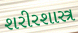
શરીરશાસ્ત્ર